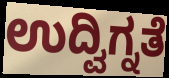
ಉದ್ವಿಗ್ನತೆ